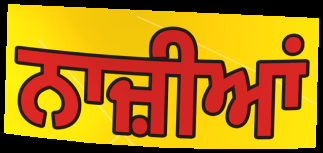
ਨਾਜ਼ੀਆਂ